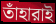
তাঁহারাই